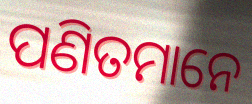
ପଣିତମାନେ